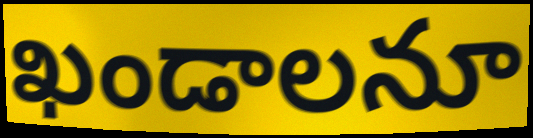
ఖండాలనూ